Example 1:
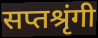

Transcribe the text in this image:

सप्तश्रृंगी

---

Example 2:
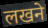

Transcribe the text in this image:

लखने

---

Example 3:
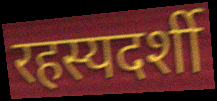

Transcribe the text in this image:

रहस्यदर्शी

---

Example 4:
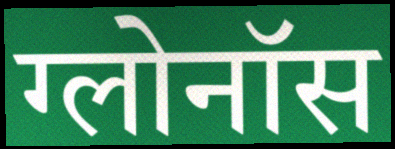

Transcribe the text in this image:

ग्लोनॉस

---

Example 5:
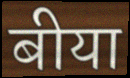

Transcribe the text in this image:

बीया